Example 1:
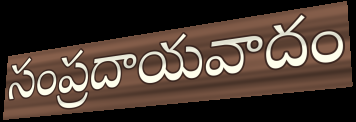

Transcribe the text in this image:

సంప్రదాయవాదం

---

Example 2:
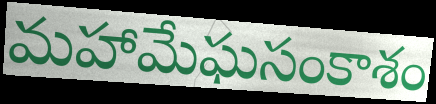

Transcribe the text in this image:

మహామేఘసంకాశం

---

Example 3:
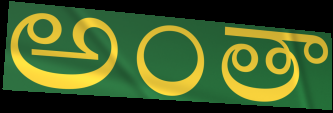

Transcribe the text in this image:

అంతా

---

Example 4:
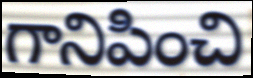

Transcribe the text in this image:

గానిపించి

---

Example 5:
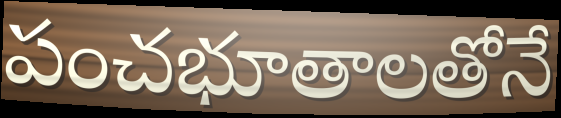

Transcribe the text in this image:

పంచభూతాలతోనే